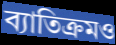
ব্যাতিক্রমও